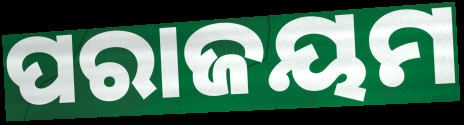
ପରାଜୟମ